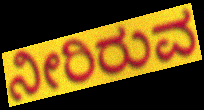
ನೀರಿರುವ